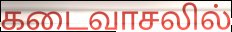
கடைவாசலில்